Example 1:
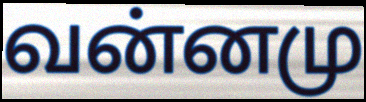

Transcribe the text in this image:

வன்னமு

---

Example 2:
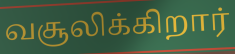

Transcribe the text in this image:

வசூலிக்கிறார்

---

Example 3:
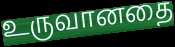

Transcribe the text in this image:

உருவானதை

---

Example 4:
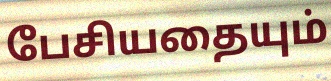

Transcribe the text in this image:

பேசியதையும்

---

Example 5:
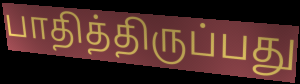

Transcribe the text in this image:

பாதித்திருப்பது